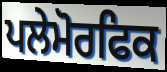
ਪਲੇਮੋਰਫਿਕ